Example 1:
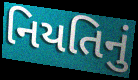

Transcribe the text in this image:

નિયતિનું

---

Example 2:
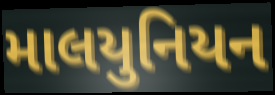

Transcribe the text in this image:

માલયુનિયન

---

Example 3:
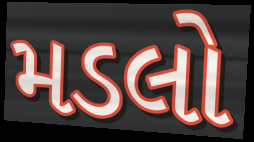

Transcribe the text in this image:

મડલો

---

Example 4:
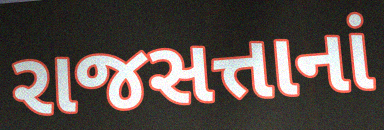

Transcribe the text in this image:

રાજસત્તાનાં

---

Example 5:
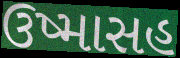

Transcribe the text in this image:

ઉષ્માસહ